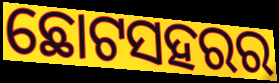
ଛୋଟସହରର